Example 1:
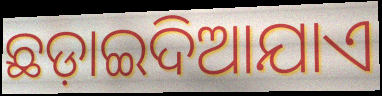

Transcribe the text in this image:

ଛଡ଼ାଇଦିଆଯାଏ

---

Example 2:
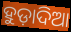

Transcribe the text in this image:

ହୁଡ଼ାଦିଆ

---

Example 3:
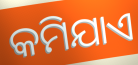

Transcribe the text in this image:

କମିଯାଏ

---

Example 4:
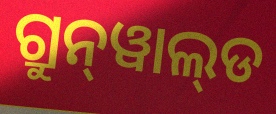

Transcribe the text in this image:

ଗ୍ରୁନ୍‌ୱାଲ୍‌ଡ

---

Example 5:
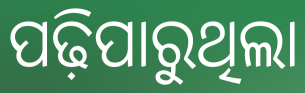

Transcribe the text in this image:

ପଢ଼ିପାରୁଥିଲା